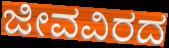
ಜೀವವಿರದ